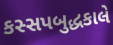
કસ્સપબુદ્ધકાલે